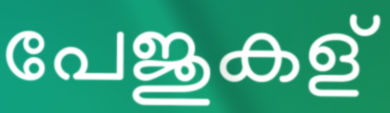
പേജുകള്